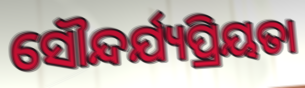
ସୌନ୍ଦର୍ଯ୍ୟପ୍ରିୟତା